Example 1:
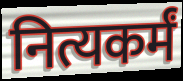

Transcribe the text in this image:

नित्यकर्मं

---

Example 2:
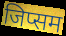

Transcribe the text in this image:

जिप्सम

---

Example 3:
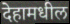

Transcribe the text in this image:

देहामधील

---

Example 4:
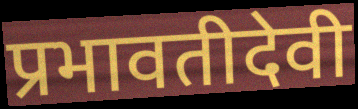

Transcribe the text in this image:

प्रभावतीदेवी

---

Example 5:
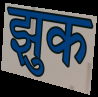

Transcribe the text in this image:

झुक